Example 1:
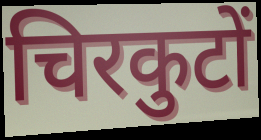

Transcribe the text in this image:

चिरकुटों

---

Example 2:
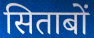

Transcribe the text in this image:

सिताबों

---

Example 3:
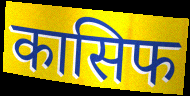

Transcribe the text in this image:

कासिफ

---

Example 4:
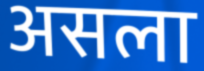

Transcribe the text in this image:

असला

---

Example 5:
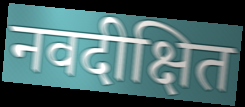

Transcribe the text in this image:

नवदीक्षित